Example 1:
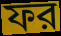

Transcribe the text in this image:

ফর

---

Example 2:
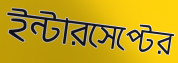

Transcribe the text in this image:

ইন্টারসেপ্টের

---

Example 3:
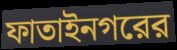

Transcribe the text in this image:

ফাতাইনগরের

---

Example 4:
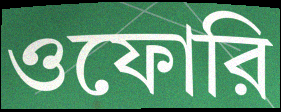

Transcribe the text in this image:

ওফোরি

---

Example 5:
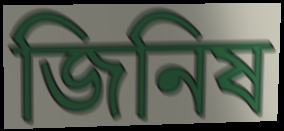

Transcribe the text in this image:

জিনিষ